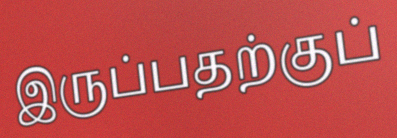
இருப்பதற்குப்